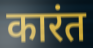
कारंत